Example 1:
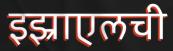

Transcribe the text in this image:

इझ्राएलची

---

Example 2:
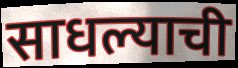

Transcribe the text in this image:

साधल्याची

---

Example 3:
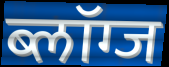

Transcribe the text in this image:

ब्लॉग्ज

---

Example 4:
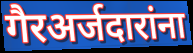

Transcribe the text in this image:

गैरअर्जदारांना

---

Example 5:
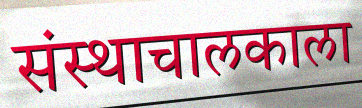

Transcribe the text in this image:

संस्थाचालकाला